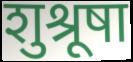
शुश्रूषा